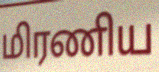
மிரணிய